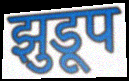
झुडूप